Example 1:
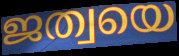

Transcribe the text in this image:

ജത്വയെ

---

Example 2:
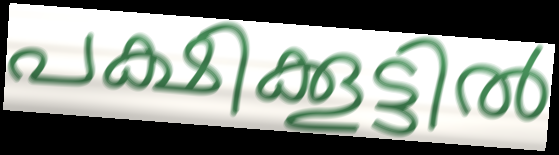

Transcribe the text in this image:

പക്ഷിക്കൂട്ടിൽ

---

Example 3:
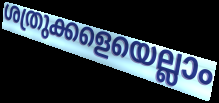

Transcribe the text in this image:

ശത്രുക്കളെയെല്ലാം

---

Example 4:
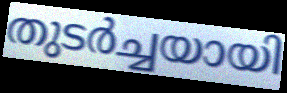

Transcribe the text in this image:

തുടർച്ചയായി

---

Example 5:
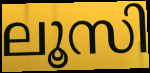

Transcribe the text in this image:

ലൂസി